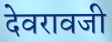
देवरावजी